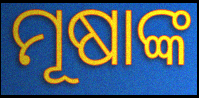
ମୂଷାଙ୍କ